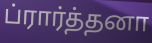
ப்ரார்த்தனா